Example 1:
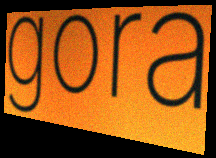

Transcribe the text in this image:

gora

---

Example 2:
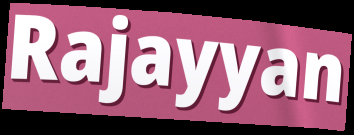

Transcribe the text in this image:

Rajayyan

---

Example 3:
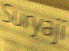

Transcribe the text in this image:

Suryaji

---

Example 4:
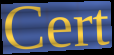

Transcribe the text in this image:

Cert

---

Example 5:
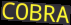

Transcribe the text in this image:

COBRA